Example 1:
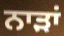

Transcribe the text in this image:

ਨਾੜਾਂ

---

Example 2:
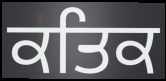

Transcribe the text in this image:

ਕਤਿਕ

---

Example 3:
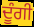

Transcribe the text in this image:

ਦੂੰਗੀ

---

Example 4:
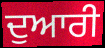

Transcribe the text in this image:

ਦੁਆਰੀ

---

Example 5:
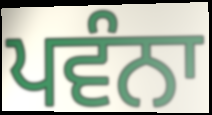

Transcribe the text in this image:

ਪਵੰਨਾ